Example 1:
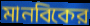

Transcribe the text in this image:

মানবিকের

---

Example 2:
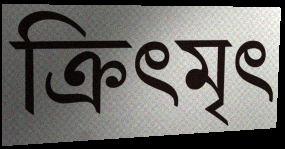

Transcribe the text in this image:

ক্রিৎমৃৎ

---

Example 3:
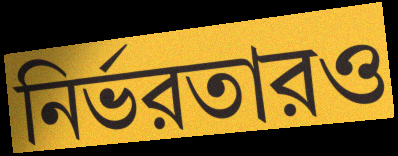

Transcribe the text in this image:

নির্ভরতারও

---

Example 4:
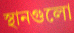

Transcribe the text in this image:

স্থানগুলো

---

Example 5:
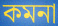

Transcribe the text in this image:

কমনা